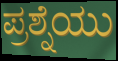
ಪ್ರಶ್ನೆಯು